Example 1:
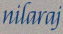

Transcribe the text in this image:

nilaraj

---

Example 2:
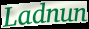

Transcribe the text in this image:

Ladnun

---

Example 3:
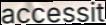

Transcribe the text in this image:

accessit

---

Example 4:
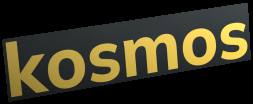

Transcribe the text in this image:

kosmos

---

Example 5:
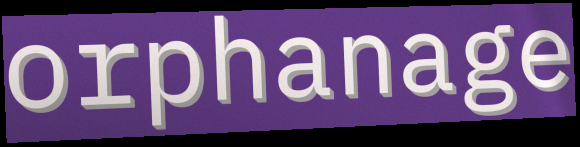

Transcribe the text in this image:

orphanage